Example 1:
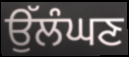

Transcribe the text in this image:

ਉੱਲੰਘਣ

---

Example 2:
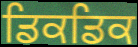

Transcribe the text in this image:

ਡਿਕਡਿਕ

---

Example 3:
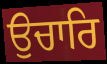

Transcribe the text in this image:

ਉਚਾਰਿ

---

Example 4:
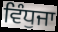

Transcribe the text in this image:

ਵਿੰਧੁਜਾ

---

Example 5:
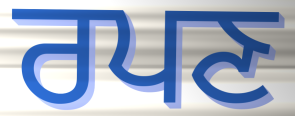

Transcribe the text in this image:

ਰਪਣ